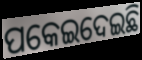
ପକେଇଦେଇଛି